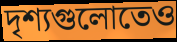
দৃশ্যগুলোতেও